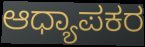
ಆಧ್ಯಾಪಕರ